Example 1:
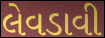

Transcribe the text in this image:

લેવડાવી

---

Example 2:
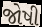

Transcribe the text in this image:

જોષી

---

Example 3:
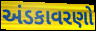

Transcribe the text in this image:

અંડકાવરણો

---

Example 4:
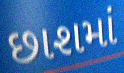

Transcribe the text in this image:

છાશમાં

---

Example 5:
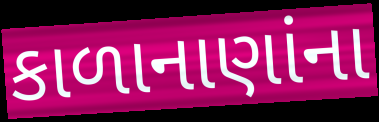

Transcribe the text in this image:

કાળાનાણાંના